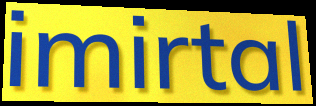
imirtal